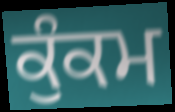
ਕੁੰਕਮ